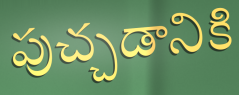
పుచ్చడానికి